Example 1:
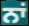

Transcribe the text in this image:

ਨਾਂ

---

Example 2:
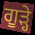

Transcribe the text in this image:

ਗੂੜ੍ਹੇ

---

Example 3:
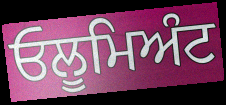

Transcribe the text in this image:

ਓਲੂਮਿਅੰਟ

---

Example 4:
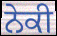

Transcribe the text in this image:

ਨੇਕੀ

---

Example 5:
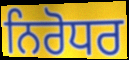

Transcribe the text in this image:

ਨਿਰੋਧਰ